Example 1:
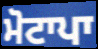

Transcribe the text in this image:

ਮੋਟਾਪਾ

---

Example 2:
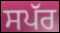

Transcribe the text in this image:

ਸਪੱਰ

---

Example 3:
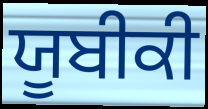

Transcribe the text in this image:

ਯੂਬੀਕੀ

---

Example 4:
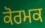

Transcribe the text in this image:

ਕੋਰਮਕ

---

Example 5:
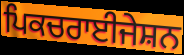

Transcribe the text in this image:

ਪਿਕਚਰਾਈਜੇਸ਼ਨ